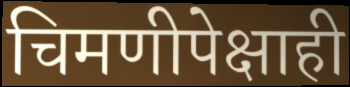
चिमणीपेक्षाही